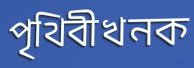
পৃথিবীখনক